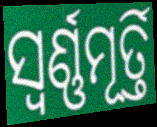
ସ୍ଵର୍ଣ୍ଣମୂର୍ତ୍ତି